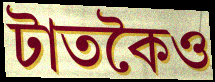
টাতকৈও